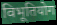
विभूतियोग